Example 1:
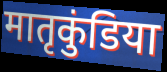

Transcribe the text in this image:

मातृकुंडिया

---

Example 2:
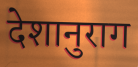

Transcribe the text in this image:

देशानुराग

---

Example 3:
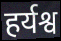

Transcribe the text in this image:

हर्यश्व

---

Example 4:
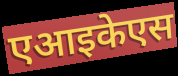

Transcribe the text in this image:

एआइकेएस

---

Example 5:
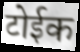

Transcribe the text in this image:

टोईक